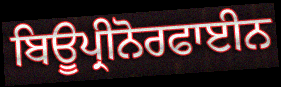
ਬਿਊਪ੍ਰੀਨੋਰਫਾਈਨ